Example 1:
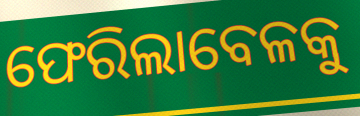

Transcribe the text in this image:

ଫେରିଲାବେଳକୁ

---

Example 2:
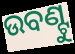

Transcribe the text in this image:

ଉବଣ୍ଟୁ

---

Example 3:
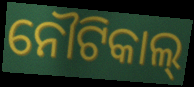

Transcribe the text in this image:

ନୌଟିକାଲ୍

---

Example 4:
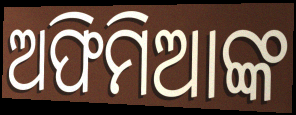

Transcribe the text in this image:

ଅଫିମିଆଙ୍କ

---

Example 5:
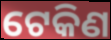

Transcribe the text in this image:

ଟେକିଣ